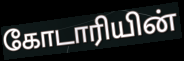
கோடாரியின்